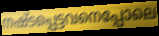
നഷ്ടപ്പെട്ടവനെപ്പോലെ